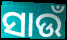
ସାଉଁ